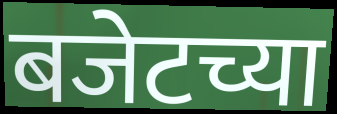
बजेटच्या